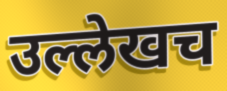
उल्लेखच